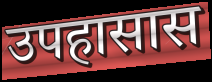
उपहासास